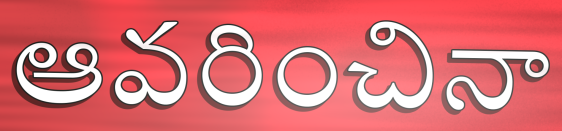
ఆవరించినా